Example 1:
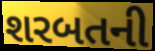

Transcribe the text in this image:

શરબતની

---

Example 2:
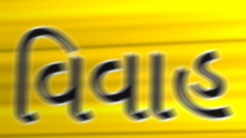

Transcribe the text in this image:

વિવાહ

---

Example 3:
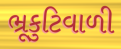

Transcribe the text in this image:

ભ્રૂકુટિવાળી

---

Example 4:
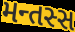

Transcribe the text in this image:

મન્તસ્સ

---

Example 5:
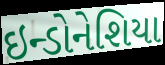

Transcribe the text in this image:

ઇન્ડોનેશિયા